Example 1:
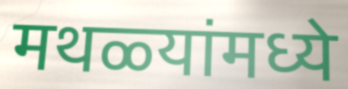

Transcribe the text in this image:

मथळ्यांमध्ये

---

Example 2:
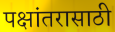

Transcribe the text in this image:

पक्षांतरासाठी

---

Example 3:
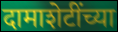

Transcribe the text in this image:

दामाशेटींच्या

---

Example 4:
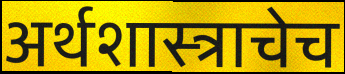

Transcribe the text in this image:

अर्थशास्त्राचेच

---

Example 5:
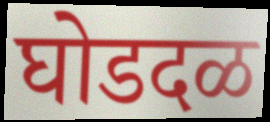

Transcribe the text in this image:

घोडदळ